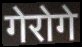
गेरोगे